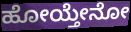
ಹೋಯ್ತೇನೋ